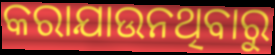
କରାଯାଉନଥିବାରୁ